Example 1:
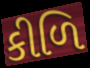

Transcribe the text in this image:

કીળિ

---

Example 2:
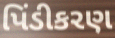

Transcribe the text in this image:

પિંડીકરણ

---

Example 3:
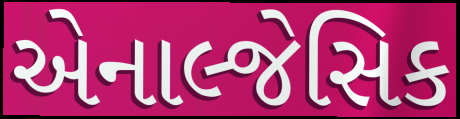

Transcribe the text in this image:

એનાલ્જેસિક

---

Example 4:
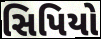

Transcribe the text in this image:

સિપિયો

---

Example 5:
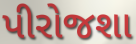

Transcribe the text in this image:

પીરોજશા